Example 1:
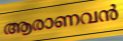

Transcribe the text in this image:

ആരാണവൻ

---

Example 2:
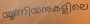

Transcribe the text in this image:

യൂണിയനുകളിലെ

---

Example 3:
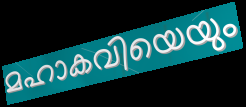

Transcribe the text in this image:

മഹാകവിയെയും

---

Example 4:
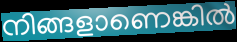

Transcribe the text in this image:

നിങ്ങളാണെങ്കിൽ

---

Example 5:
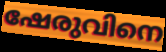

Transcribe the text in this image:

ഷേരുവിനെ